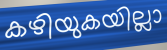
കഴിയുകയില്ലാ